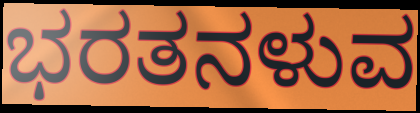
ಭರತನಳುವ